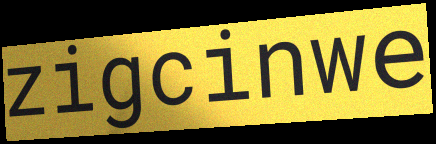
zigcinwe